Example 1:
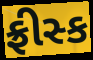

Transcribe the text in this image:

ફ્રીસ્ક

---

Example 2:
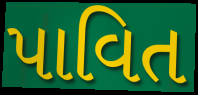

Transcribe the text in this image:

પાવિત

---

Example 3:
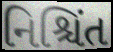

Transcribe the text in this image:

નિશ્ચિંત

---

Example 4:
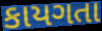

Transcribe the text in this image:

કાયગતા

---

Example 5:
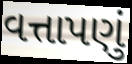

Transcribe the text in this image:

વત્તાપણું